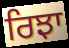
ਰਿਝਾ